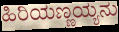
ಹಿರಿಯಣ್ಣಯ್ಯನು